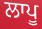
ਲਾਪੂ